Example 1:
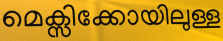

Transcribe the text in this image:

മെക്സിക്കോയിലുള്ള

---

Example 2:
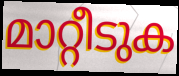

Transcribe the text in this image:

മാറ്റീടുക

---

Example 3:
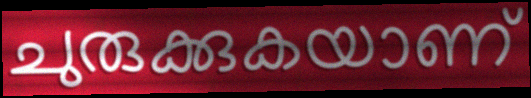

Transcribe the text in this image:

ചുരുക്കുകയാണ്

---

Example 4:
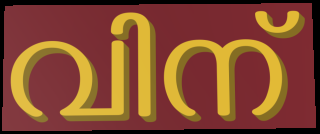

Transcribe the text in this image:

വിന്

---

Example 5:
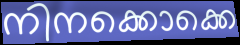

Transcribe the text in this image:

നിനക്കൊക്കെ